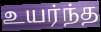
உயர்ந்த